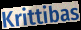
Krittibas